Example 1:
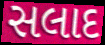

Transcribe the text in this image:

સલાદ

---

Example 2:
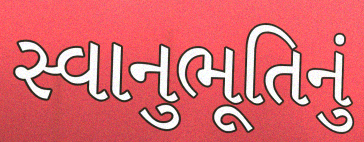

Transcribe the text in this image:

સ્વાનુભૂતિનું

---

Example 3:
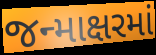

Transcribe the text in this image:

જન્માક્ષરમાં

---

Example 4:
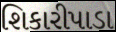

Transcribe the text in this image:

શિકારીપાડા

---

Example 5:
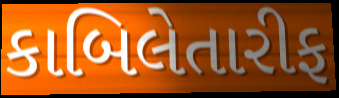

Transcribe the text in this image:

કાબિલેતારીફ